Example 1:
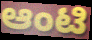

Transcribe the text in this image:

ಆಂಟಿ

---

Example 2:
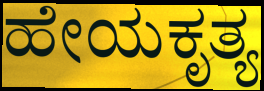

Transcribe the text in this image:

ಹೇಯಕೃತ್ಯ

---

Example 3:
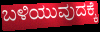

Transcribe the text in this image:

ಬಳಿಯುವುದಕ್ಕೆ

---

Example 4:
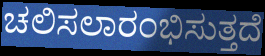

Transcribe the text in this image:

ಚಲಿಸಲಾರಂಭಿಸುತ್ತದೆ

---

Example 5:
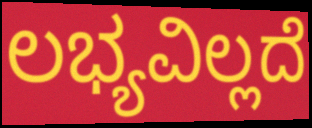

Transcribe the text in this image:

ಲಭ್ಯವಿಲ್ಲದೆ